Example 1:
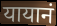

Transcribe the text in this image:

यायानं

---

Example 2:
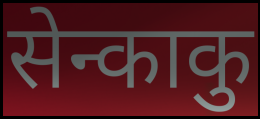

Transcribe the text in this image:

सेन्काकु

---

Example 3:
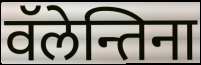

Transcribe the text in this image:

वॅलेन्तिना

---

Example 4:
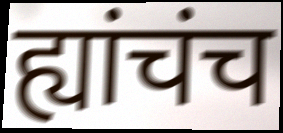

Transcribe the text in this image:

ह्यांचंच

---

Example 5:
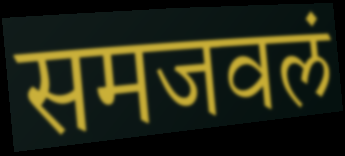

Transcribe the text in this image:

समजवलं